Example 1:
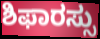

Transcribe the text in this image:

ಶಿಫಾರಸ್ಸು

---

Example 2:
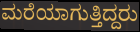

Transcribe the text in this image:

ಮರೆಯಾಗುತ್ತಿದ್ದರು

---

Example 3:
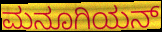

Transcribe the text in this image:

ಮನೂಗಿಯನ್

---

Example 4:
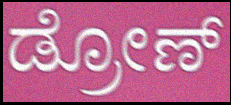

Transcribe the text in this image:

ಡ್ರೋಣ್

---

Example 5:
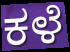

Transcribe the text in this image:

ಕಳೆ